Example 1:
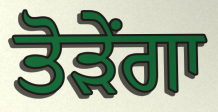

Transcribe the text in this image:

ਤੋੜੇਂਗਾ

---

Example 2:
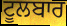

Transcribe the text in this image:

ਟੂਲਬਾਰ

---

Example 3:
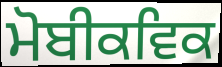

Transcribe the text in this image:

ਮੋਬੀਕਵਿਕ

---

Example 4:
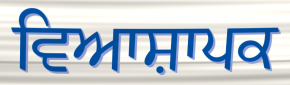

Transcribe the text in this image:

ਵਿਆਸ਼ਾਪਕ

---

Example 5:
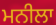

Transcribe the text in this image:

ਮਨੀਲਾ